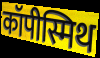
कॉपीस्मिथ